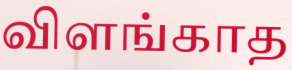
விளங்காத